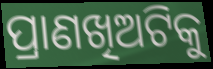
ପ୍ରାଣଖିଅଟିକୁ